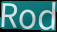
Rod